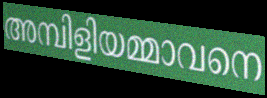
അമ്പിളിയമ്മാവനെ